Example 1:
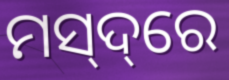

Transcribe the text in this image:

ମସ୍‌ଦ୍‌ରେ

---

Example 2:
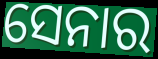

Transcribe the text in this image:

ସେନାର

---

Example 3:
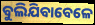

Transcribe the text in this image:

ବୁଲିଯିବାବେଳେ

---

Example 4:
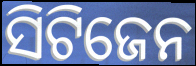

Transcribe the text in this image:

ସିଟିଜେନ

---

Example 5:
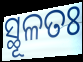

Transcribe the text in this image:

ସ୍ଥୂଳତଃ